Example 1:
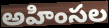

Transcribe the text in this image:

అహింసల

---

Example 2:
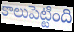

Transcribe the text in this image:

కాలుపెట్టింది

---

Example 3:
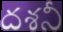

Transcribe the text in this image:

దశనీ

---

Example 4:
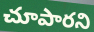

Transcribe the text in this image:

చూపారని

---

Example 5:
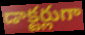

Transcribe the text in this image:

డాక్టర్లుగా